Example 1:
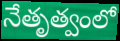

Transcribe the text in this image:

నేతృత్వంలో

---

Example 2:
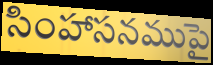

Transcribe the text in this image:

సింహాసనముపై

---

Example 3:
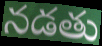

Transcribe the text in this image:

నడతు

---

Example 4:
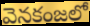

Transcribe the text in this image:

వెనకంజలో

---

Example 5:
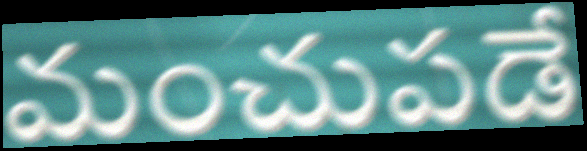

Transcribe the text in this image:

మంచుపడే